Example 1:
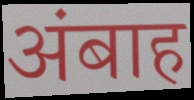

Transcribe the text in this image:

अंबाह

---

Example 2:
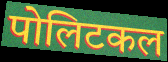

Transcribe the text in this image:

पोलिटकल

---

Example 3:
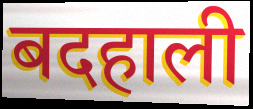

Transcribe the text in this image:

बदहाली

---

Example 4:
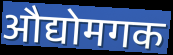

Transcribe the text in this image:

औद्योमगक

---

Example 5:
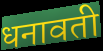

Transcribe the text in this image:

धनावती